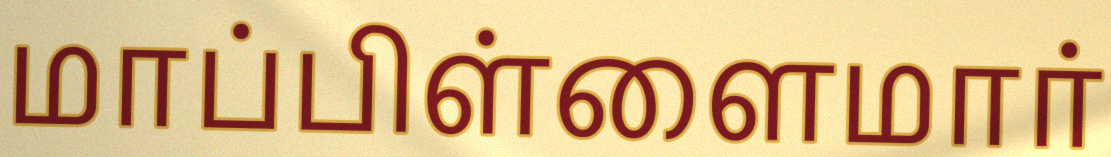
மாப்பிள்ளைமார்